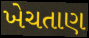
ખેચતાણ